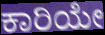
ಕಾರಿಯೇ